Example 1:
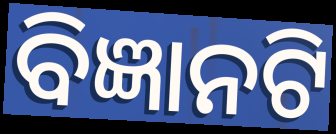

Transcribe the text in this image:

ବିଜ୍ଞାନଟି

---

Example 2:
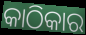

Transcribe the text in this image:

କାଠିକାର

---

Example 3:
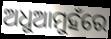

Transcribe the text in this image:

ଅଧୁଆମୁହଁରେ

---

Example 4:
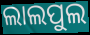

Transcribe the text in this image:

ଲାଲପୁଲ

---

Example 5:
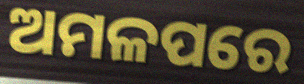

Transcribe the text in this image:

ଅମଳପରେ